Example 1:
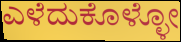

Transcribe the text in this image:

ಎಳೆದುಕೊಳ್ಳೋ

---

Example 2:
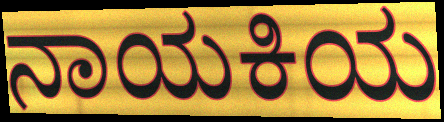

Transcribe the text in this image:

ನಾಯಕಿಯ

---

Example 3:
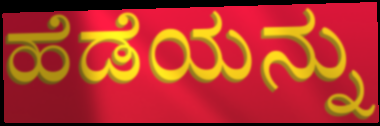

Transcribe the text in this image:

ಹೆಡೆಯನ್ನು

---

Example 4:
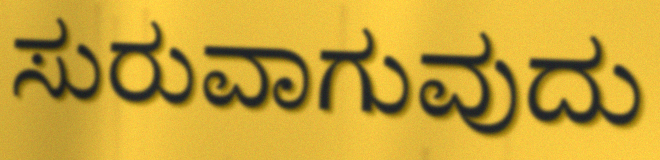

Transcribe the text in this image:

ಸುರುವಾಗುವುದು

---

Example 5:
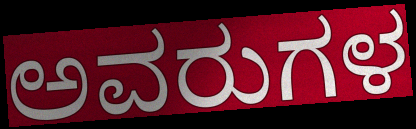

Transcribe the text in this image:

ಅವರುಗಳ